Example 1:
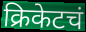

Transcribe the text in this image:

क्रिकेटचं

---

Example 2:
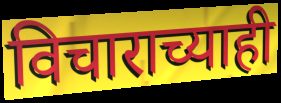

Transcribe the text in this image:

विचाराच्याही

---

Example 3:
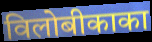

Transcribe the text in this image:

विलोबीकाका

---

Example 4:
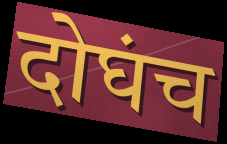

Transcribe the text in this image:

दोघंच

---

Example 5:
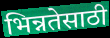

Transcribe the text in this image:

भिन्नतेसाठी